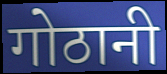
गोठानी